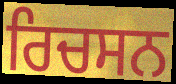
ਰਿਚਸਨ